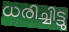
ധരിച്ചിട്ടു